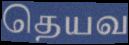
தெயவ